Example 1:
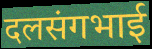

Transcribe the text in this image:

दलसंगभाई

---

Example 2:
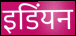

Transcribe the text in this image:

इडिंयन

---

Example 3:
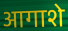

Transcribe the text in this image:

आगाशे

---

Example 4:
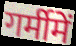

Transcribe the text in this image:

गर्मीमें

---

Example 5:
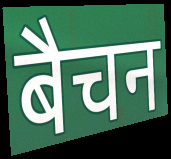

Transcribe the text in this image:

बैचन